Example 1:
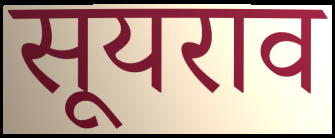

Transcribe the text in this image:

सूयराव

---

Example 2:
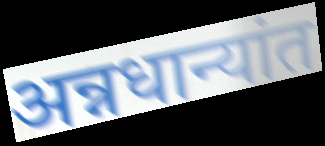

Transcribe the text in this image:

अन्नधान्यांत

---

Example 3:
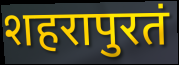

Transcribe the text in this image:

शहरापुरतं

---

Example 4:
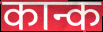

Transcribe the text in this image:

कान्क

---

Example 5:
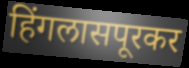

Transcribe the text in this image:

हिंगलासपूरकर